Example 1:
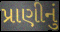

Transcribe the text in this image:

પ્રાણીનું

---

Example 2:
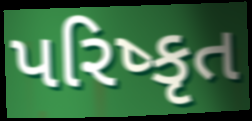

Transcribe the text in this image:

પરિષ્કૃત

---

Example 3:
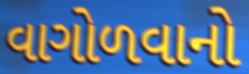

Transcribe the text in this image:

વાગોળવાનો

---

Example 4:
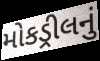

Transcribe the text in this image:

મોકડ્રીલનું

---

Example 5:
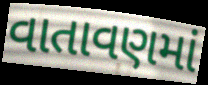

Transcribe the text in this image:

વાતાવણમાં